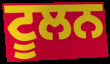
ਟੂਲਨ